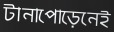
টানাপোড়েনেই